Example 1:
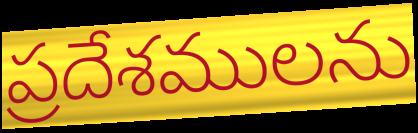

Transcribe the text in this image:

ప్రదేశములను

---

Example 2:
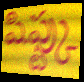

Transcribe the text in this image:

షిఫ్ట్కు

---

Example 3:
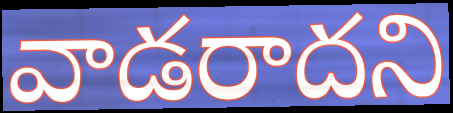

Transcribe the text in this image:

వాడరాదని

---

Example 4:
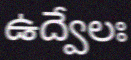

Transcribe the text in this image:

ఉద్వేలః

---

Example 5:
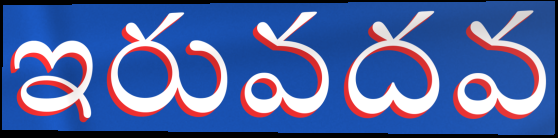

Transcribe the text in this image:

ఇరువదవ